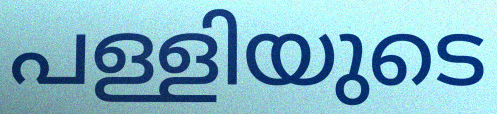
പള്ളിയുടെ